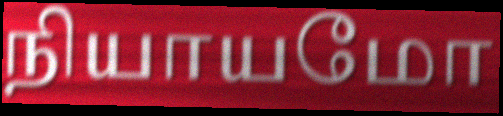
நியாயமோ